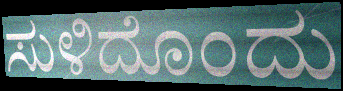
ಸುಳಿದೊಂದು